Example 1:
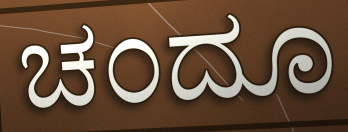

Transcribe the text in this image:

ಚಂದೂ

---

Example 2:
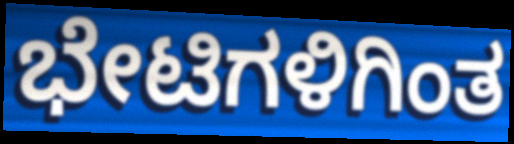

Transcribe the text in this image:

ಭೇಟಿಗಳಿಗಿಂತ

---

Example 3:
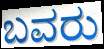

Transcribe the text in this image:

ಬವರು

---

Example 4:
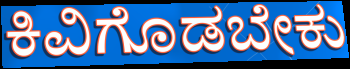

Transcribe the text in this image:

ಕಿವಿಗೊಡಬೇಕು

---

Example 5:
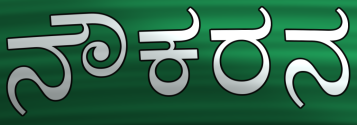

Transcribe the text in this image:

ನೌಕರನ